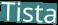
Tista